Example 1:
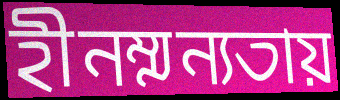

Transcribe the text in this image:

হীনম্মন্যতায়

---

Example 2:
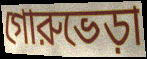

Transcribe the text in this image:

গোরুভেড়া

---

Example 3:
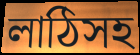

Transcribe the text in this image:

লাঠিসহ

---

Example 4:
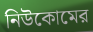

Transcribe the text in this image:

নিউকোমের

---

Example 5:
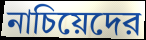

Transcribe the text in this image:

নাচিয়েদের